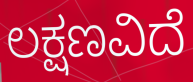
ಲಕ್ಷಣವಿದೆ